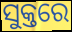
ସୁକ୍ତରେ